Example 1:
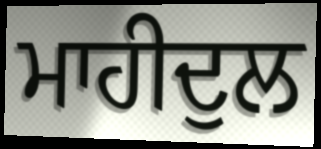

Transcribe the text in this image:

ਮਾਹੀਦੁਲ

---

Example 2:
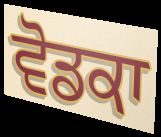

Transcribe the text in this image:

ਵੋਡਕਾ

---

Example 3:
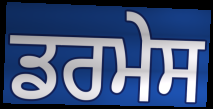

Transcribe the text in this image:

ਡਰਮੇਸ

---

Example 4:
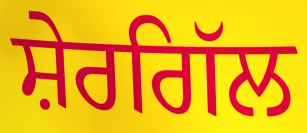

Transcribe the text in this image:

ਸ਼ੇਰਗਿੱਲ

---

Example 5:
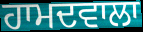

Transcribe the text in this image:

ਹਾਮਦਵਾਲਾ